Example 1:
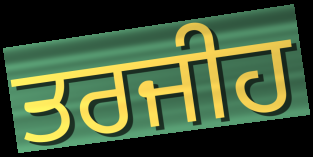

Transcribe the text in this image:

ਤਰਜੀਹ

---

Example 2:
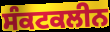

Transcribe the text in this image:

ਸੰਕਟਕਲੀਨ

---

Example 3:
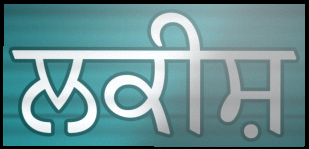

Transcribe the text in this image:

ਲਕੀਸ਼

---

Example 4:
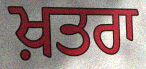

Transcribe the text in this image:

ਖ਼ਤਰਾ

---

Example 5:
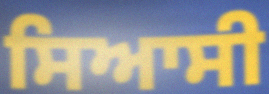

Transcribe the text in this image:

ਸਿਆਸੀ